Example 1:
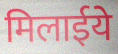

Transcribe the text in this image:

मिलाईये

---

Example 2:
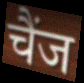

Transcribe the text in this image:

चैंज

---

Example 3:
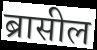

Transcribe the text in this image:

ब्रासील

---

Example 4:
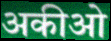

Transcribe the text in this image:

अकीओ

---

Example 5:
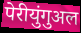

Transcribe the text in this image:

पेरीयुंगुअल